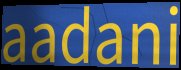
aadani